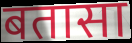
बतासा